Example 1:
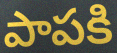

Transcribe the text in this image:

పాపకి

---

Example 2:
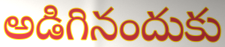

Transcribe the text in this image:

అడిగినందుకు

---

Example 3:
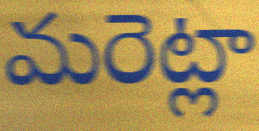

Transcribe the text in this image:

మరెట్లా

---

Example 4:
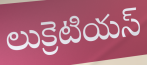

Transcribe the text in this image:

లుక్రెటియస్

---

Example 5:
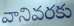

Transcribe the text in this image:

వానివరకు